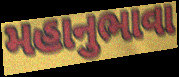
મહાનુભાવા